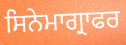
ਸਿਨੇਮਾਗ੍ਰਾਫਰ